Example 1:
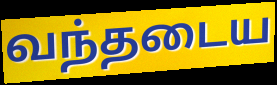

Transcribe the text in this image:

வந்தடைய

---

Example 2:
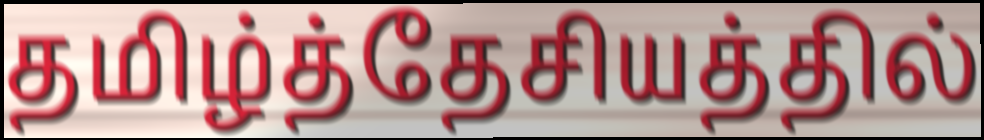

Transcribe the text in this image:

தமிழ்த்தேசியத்தில்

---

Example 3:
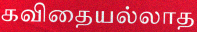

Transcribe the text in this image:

கவிதையல்லாத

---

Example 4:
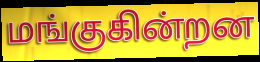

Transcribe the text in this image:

மங்குகின்றன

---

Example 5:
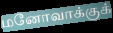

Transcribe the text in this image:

மனோவாக்குக்